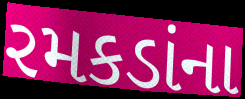
રમકડાંના